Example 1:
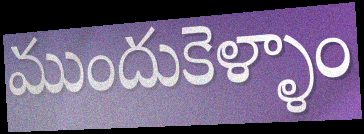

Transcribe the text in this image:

ముందుకెళ్ళాం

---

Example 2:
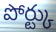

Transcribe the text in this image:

పోర్ట్కు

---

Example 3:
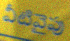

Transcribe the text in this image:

వీటివైపు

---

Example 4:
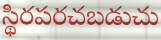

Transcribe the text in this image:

స్థిరపరచబడుచు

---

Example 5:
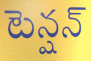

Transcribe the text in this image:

టెన్షన్